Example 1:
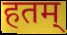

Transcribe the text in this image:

हतम्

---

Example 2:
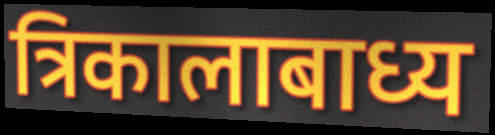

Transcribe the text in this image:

त्रिकालाबाध्य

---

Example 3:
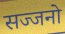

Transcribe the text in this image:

सज्जनो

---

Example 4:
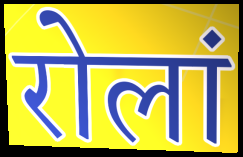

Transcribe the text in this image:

रोलां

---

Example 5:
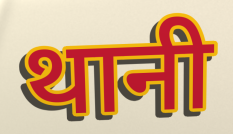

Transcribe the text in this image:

थानी